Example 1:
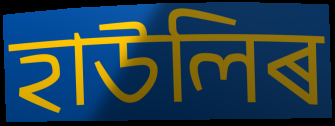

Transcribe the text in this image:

হাউলিৰ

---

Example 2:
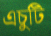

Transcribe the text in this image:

এচুটি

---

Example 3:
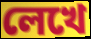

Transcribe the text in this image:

লেখে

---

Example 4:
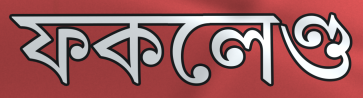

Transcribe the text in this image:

ফকলেণ্ড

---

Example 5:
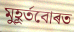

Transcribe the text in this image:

মুহূৰ্তবোৰত